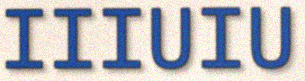
IIIUIU